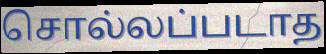
சொல்லப்படாத